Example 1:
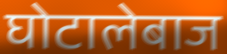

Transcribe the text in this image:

घोटालेबाज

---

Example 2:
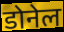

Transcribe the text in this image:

डोनेल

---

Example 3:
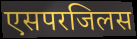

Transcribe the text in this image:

एसपरजिलस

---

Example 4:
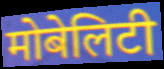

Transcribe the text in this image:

मोबेलिटी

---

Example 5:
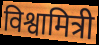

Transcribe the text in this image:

विश्वामित्री